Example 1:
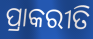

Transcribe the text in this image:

ପ୍ରାକରୀତି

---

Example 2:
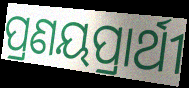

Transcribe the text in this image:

ପ୍ରଣୟପ୍ରାର୍ଥୀ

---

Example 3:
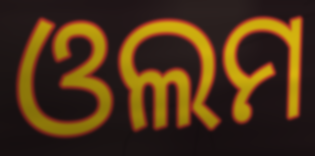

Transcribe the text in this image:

ଓଲମ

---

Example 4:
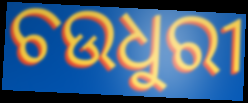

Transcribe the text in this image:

ଚଉଧୁରୀ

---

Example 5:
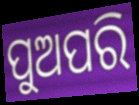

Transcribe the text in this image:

ପୁଅପରି